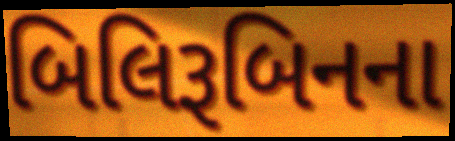
બિલિરૂબિનના